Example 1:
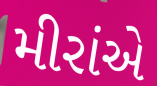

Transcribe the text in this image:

મીરાંએ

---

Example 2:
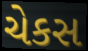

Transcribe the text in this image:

ચેકસ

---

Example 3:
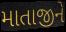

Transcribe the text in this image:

માતાજીને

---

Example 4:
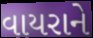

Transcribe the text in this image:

વાયરાને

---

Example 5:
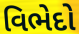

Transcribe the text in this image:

વિભેદો